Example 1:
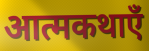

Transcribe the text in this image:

आत्मकथाएँ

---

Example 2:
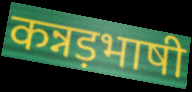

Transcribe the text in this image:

कन्नड़भाषी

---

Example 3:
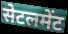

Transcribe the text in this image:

सेटलमेंट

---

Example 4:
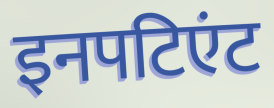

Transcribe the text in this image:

इनपटिएंट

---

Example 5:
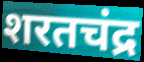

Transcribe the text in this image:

शरतचंद्र